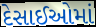
દેસાઈઓમાં